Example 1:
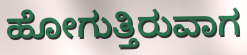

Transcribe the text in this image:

ಹೋಗುತ್ತಿರುವಾಗ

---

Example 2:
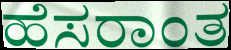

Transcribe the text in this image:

ಹೆಸರಾಂತ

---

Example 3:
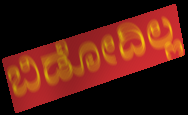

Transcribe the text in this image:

ಬಿಡೋದಿಲ್ಲ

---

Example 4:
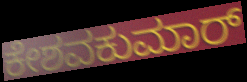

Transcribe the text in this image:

ಕೇಶವಕುಮಾರ್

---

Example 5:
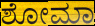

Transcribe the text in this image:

ಶೋಮಾ